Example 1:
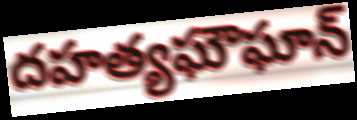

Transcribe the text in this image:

దహత్యఘౌఘాన్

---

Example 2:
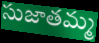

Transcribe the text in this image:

సుజాతమ్మ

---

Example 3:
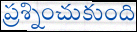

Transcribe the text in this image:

ప్రశ్నించుకుంది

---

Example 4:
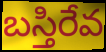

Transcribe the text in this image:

బస్తిరేవ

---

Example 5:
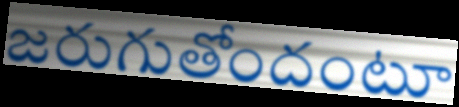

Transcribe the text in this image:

జరుగుతోందంటూ